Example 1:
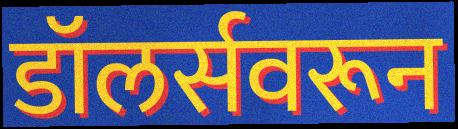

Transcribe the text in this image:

डॉलर्सवरून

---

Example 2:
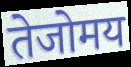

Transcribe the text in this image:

तेजोमय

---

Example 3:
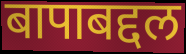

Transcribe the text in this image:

बापाबद्दल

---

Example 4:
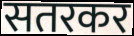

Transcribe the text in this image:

सतरकर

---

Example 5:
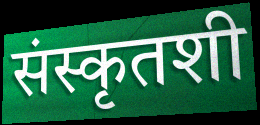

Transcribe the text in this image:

संस्कृतशी